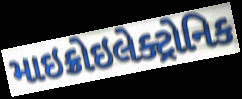
માઇક્રોઇલેક્ટ્રોનિક